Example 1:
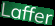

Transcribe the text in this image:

Laffer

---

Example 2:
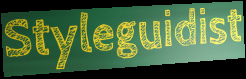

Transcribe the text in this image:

Styleguidist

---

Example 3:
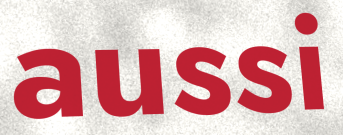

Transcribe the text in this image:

aussi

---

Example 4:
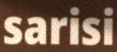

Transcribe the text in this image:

sarisi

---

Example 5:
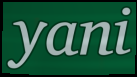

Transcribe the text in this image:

yani